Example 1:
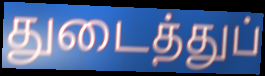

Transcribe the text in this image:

துடைத்துப்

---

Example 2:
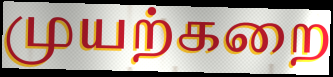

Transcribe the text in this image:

முயற்கறை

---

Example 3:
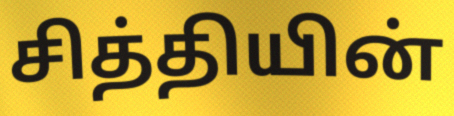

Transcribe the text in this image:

சித்தியின்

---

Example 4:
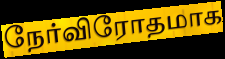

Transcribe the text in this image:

நேர்விரோதமாக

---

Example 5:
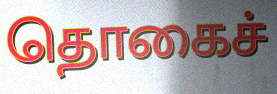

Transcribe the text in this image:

தொகைச்